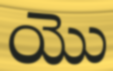
యొ